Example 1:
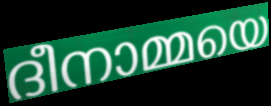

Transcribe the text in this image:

ദീനാമ്മയെ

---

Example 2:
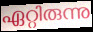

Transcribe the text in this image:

ഏറ്റിരുന്നു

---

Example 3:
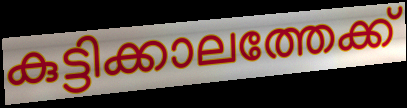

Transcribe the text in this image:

കുട്ടിക്കാലത്തേക്ക്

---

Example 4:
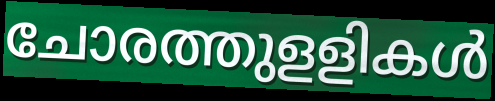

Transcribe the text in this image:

ചോരത്തുളളികൾ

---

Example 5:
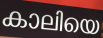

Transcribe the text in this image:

കാലിയെ